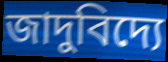
জাদুবিদ্যে